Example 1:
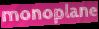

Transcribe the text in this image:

monoplane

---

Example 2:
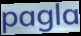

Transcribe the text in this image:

pagla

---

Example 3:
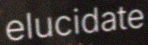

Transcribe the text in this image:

elucidate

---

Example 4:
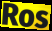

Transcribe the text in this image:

Ros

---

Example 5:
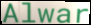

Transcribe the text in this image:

Alwar